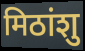
मिठांशु